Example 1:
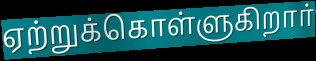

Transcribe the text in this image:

ஏற்றுக்கொள்ளுகிறார்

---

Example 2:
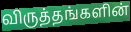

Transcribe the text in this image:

விருத்தங்களின்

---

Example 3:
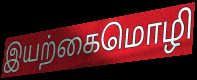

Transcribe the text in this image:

இயற்கைமொழி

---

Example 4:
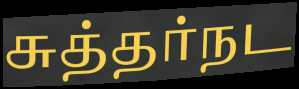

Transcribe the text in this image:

சுத்தர்நட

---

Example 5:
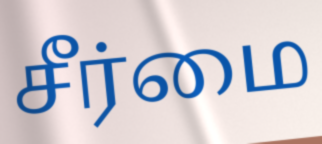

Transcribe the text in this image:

சீர்மை